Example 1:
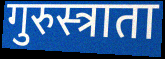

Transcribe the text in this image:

गुरुस्त्राता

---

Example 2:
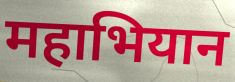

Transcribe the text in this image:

महाभियान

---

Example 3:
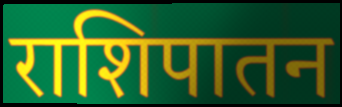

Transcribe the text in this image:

राशिपातन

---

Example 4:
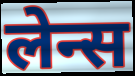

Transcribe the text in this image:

लेन्स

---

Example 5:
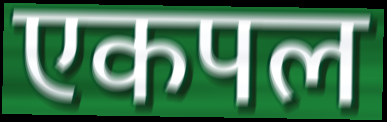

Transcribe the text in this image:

एकपल